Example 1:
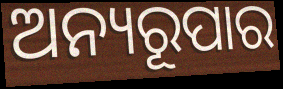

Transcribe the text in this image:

ଅନ୍ୟରୂପାର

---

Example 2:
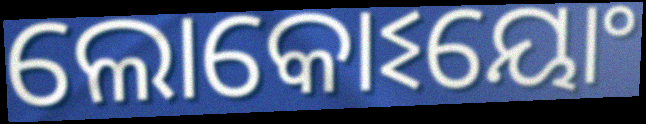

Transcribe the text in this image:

ଲୋକୋଽୟୋଂ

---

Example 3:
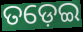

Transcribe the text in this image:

ତଡ଼େଇ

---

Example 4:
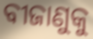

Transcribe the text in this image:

ବୀଜାଣୁକୁ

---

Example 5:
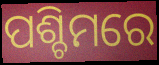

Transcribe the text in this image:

ପଶ୍ଚିମରେ